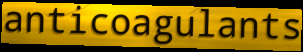
anticoagulants